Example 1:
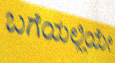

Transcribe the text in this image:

ಬಗೆಯಲ್ಲಿಯೇ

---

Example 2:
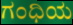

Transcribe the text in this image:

ಗಂಧಿಯ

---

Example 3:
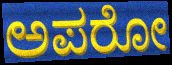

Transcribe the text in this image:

ಅಪರೋ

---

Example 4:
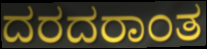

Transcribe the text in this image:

ದರದರಾಂತ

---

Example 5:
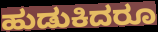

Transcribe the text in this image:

ಹುಡುಕಿದರೂ